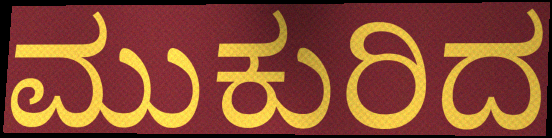
ಮುಕುರಿದ